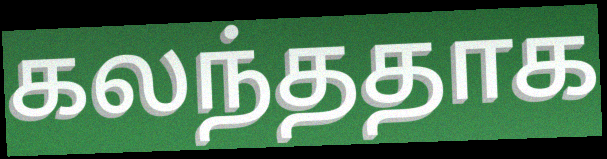
கலந்ததாக